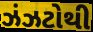
ઝંઝટોથી